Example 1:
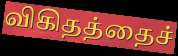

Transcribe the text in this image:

விகிதத்தைச்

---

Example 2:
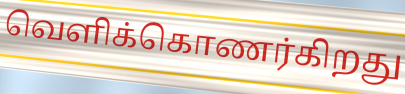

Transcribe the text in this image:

வெளிக்கொணர்கிறது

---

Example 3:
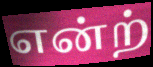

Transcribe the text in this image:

என்ற்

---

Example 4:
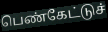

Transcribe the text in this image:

பெண்கேட்டுச்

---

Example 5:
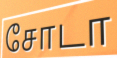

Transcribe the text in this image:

சோடா